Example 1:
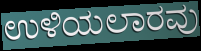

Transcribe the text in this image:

ಉಳಿಯಲಾರವು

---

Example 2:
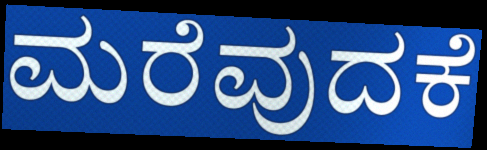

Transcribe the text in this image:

ಮರೆವುದಕೆ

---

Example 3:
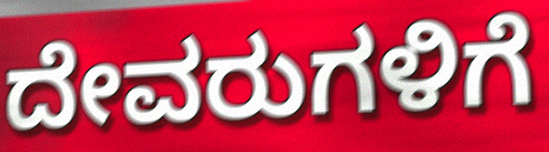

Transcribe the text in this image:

ದೇವರುಗಳಿಗೆ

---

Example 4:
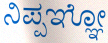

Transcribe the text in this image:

ನಿಪ್ಪಞ್ಞೋ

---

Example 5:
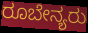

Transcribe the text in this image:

ರೂಬೇನ್ಯರು